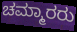
ಚಮ್ಮಾರರು